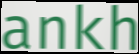
ankh